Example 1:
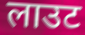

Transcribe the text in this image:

लाउट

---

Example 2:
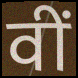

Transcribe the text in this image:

वीं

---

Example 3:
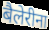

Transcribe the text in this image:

बैलेरीना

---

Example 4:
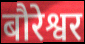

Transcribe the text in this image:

बौरेश्वर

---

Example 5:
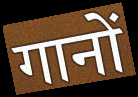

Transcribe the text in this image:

गानों